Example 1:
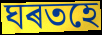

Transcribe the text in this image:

ঘৰতহে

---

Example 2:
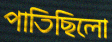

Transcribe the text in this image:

পাতিছিলো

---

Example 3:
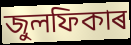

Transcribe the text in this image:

জুলফিকাৰ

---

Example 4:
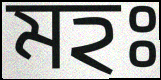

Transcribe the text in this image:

মহঃ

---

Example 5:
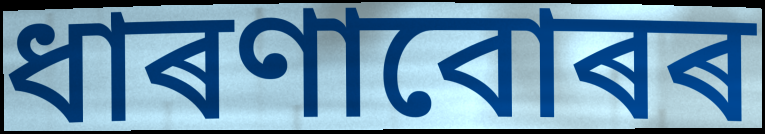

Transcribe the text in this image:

ধাৰণাবোৰৰ